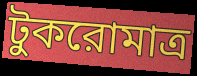
টুকরোমাত্র